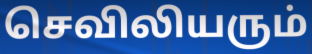
செவிலியரும்